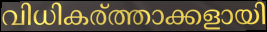
വിധികര്ത്താക്കളായി